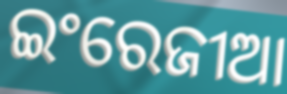
ଇଂରେଜୀଆ